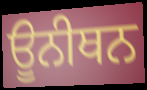
ਊਨੀਥਨ